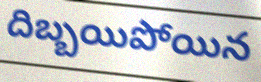
దిబ్బయిపోయిన